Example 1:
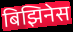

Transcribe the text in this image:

बिझिनेस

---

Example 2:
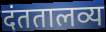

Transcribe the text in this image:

दंततालव्य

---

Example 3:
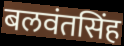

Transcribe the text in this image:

बलवंतसिंह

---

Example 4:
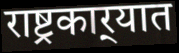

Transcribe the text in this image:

राष्ट्रकार्यात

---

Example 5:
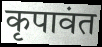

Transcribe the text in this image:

कृपावंत